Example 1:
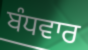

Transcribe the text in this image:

ਬੰਧਵਾਰ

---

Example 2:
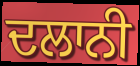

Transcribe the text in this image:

ਦਲਾਨੀ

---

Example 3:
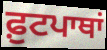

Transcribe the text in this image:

ਫ਼ੁਟਪਾਥਾਂ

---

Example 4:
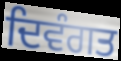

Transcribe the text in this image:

ਦਿਵੰਗਤ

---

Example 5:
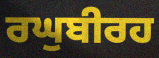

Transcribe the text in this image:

ਰਘੁਬੀਰਹ